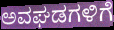
ಅವಘಡಗಳಿಗೆ